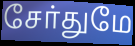
சேர்துமே